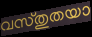
വസ്തുതയാ